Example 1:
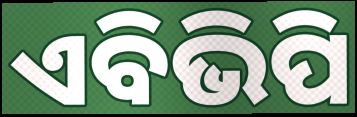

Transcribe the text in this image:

ଏବିଭିପି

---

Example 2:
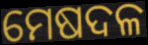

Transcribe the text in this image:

ମେଷଦଳ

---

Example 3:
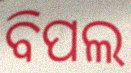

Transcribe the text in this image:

ବିପଲ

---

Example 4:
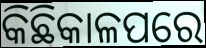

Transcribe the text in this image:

କିଛିକାଳପରେ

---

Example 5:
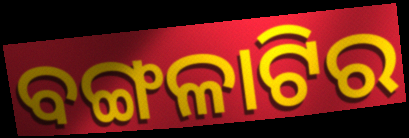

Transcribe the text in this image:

ବଙ୍ଗଳାଟିର